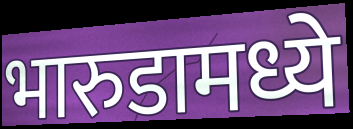
भारुडामध्ये